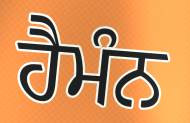
ਹੈਮੰਨ